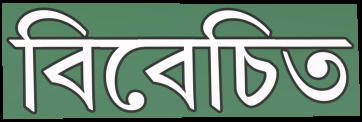
বিবেচিত